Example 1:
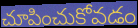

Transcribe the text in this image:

చూపించుకోవడం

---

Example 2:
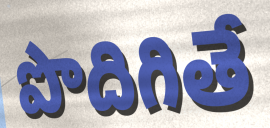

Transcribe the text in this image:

పొదిగితే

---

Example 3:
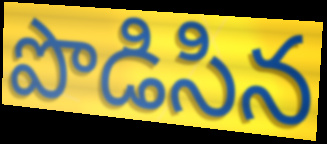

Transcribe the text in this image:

పొడిసిన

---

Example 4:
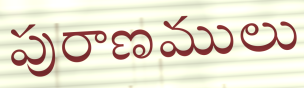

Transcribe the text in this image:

పురాణములు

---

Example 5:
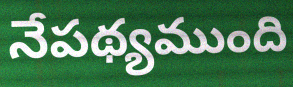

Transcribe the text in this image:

నేపథ్యముంది